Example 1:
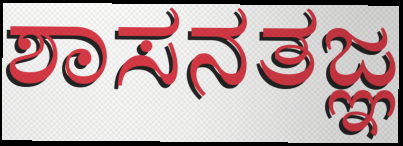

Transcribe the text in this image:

ಶಾಸನತಜ್ಞ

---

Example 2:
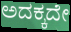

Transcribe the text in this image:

ಅದಕ್ಕದೇ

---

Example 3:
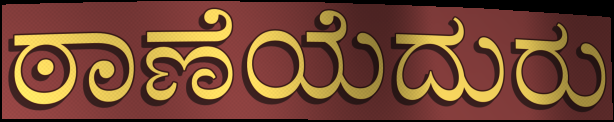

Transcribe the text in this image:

ಠಾಣೆಯೆದುರು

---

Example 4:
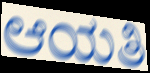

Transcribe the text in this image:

ಆಯತಿ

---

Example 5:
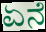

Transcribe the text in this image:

ಏನೆ